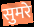
सुमरे